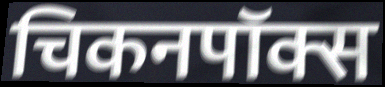
चिकनपॉक्स